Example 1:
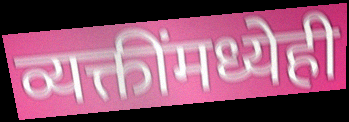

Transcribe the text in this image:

व्यक्तींमध्येही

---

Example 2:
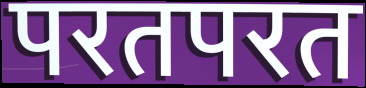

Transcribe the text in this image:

परतपरत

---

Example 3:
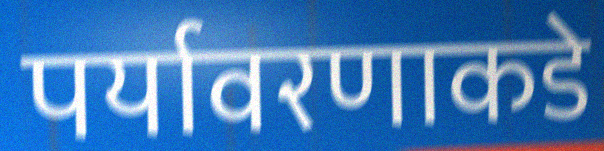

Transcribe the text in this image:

पर्यावरणाकडे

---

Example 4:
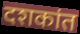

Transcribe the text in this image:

दशकांत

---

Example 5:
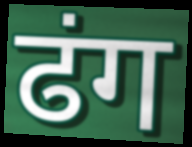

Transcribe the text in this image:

ढंग